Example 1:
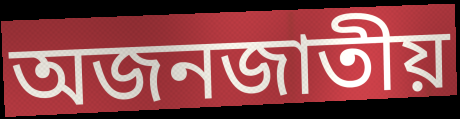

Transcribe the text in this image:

অজনজাতীয়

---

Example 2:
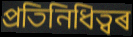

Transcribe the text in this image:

প্ৰতিনিধিত্বৰ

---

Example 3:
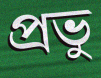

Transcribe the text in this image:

প্ৰভু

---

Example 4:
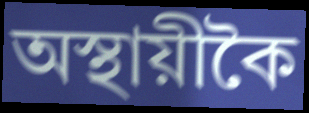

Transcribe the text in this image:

অস্থায়ীকৈ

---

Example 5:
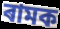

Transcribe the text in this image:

ৰামক